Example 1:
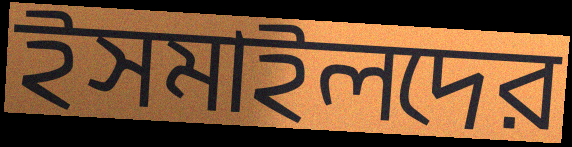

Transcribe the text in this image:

ইসমাইলদের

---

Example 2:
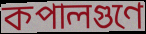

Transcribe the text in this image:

কপালগুণে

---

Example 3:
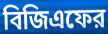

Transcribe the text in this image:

বিজিএফের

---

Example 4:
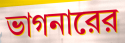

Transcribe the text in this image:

ভাগনারের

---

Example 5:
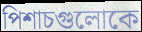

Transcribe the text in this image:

পিশাচগুলোকে